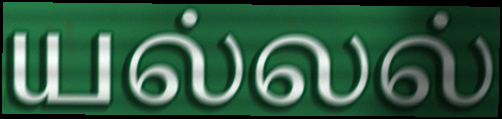
யல்லல்